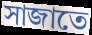
সাজাতে